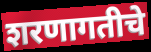
शरणागतीचे